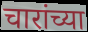
चारांच्या